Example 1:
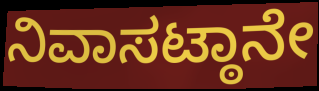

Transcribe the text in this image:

ನಿವಾಸಟ್ಠಾನೇ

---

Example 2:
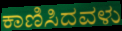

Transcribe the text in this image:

ಕಾಣಿಸಿದವಳು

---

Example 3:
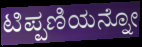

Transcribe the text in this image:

ಟಿಪ್ಪಣಿಯನ್ನೋ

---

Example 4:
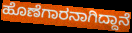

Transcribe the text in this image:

ಹೊಣೆಗಾರನಾಗಿದ್ದಾನೆ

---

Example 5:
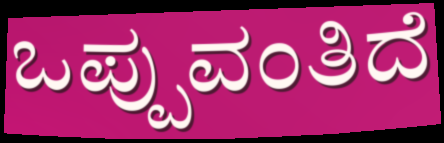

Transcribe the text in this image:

ಒಪ್ಪುವಂತಿದೆ